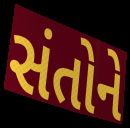
સંતોને